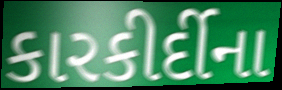
કારકીર્દીના